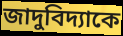
জাদুবিদ্যাকে